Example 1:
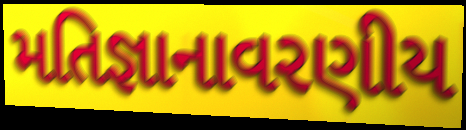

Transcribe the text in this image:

મતિજ્ઞાનાવરણીય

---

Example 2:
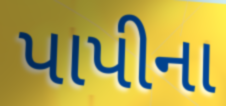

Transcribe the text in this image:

પાપીના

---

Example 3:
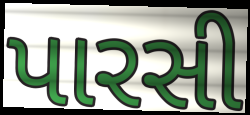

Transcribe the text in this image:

પારસી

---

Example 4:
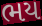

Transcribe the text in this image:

ભય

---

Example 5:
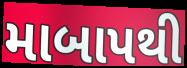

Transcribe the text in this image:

માબાપથી